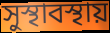
সুস্থাবস্থায়